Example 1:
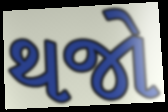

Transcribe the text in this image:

થજો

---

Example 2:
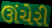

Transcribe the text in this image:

ઊંચેરી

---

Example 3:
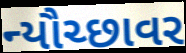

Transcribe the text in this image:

ન્યૌચ્છાવર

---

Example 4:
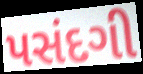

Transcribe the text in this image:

પસંદગી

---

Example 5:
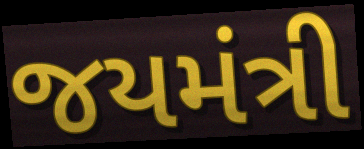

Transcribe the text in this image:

જયમંત્રી